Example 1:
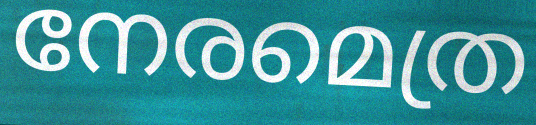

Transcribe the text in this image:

നേരമെത്ര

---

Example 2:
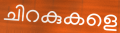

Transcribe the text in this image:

ചിറകുകളെ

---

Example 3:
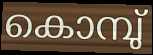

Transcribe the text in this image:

കൊമ്പു്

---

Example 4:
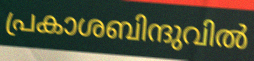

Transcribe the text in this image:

പ്രകാശബിന്ദുവിൽ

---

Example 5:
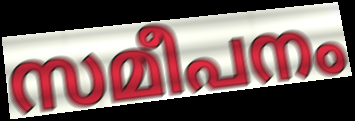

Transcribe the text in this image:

സമീപനം